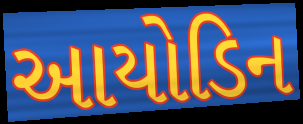
આયોડિન